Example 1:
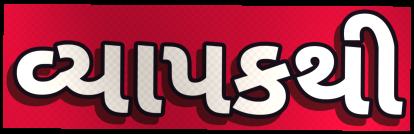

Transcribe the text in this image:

વ્યાપકથી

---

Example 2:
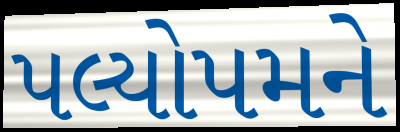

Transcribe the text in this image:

પલ્યોપમને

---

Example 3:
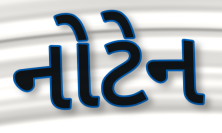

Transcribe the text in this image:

નોટેન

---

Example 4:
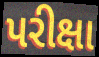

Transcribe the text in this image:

પરીક્ષા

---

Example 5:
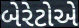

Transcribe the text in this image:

બેરેટોએ